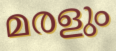
മരളും